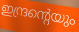
ഇന്ദ്രന്റെയും